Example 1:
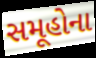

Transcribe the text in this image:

સમૂહોના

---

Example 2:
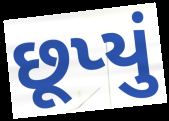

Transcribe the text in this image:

છૂપ્યું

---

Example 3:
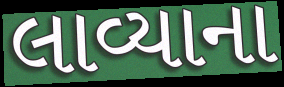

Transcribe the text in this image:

લાવ્યાના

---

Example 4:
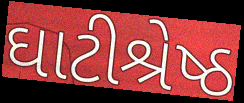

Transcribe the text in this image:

ઘાટીશ્રેષ્ઠ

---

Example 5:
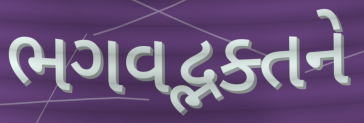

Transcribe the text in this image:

ભગવદ્ભક્તને